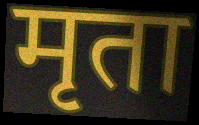
मृता